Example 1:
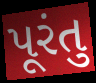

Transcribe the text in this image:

પૂરંતુ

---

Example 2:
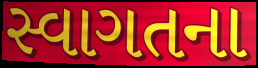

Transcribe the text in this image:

સ્વાગતના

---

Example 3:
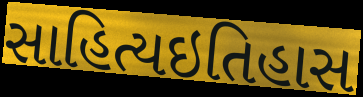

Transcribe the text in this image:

સાહિત્યઇતિહાસ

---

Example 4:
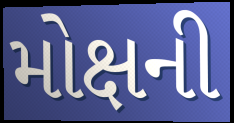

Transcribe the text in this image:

મોક્ષની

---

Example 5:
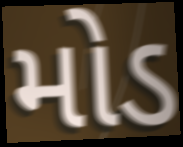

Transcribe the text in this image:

મોડ